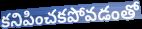
కనిపించకపోవడంతో